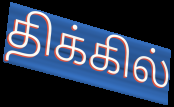
திக்கில்